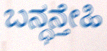
ಬನ್ಧನ್ತೇಹಿ